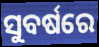
ସୁବର୍ଷରେ